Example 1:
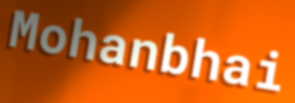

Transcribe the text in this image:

Mohanbhai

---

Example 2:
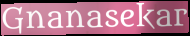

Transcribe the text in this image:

Gnanasekar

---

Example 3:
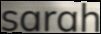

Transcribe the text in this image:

sarah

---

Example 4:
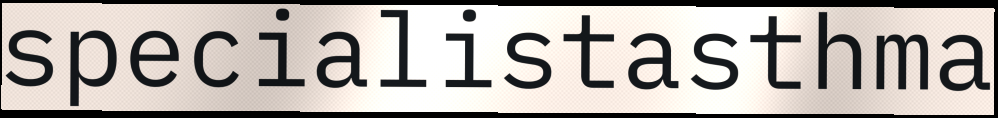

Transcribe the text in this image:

specialistasthma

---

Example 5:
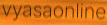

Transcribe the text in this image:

vyasaonline